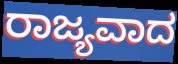
ರಾಜ್ಯವಾದ